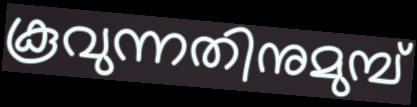
കൂവുന്നതിനുമുമ്പ്